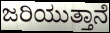
ಜರಿಯುತ್ತಾನೆ